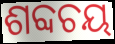
ଶବ୍ଦଚୟ